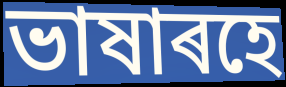
ভাষাৰহে